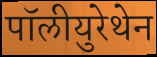
पॉलीयुरेथेन